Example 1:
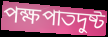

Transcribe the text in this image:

পক্ষপাতদুষ্ট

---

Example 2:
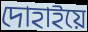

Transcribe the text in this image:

দোহাইয়ে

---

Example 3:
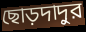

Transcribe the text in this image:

ছোড়দাদুর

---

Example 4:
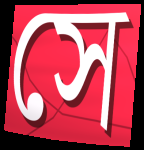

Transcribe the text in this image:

সে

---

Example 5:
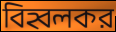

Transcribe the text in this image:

বিহ্বলকর